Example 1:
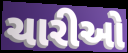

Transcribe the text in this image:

ચારીઓ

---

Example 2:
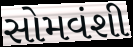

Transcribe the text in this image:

સોમવંશી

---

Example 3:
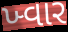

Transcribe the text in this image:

ખ્વાર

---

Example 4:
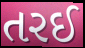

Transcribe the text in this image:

તરઈ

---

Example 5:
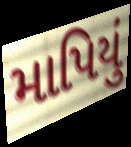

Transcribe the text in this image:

માપિયું